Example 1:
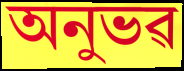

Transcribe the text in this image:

অনুভৱ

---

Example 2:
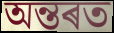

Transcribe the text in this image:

অন্তৰত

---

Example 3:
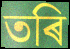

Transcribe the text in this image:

তৰি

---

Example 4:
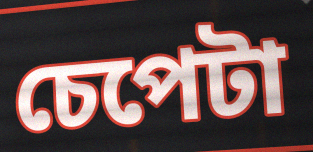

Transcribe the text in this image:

চেপেটা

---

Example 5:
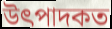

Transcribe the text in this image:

উৎপাদকত